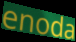
enoda